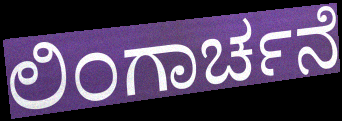
ಲಿಂಗಾರ್ಚನೆ